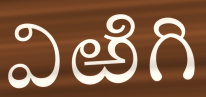
విఱిగి